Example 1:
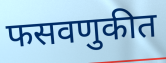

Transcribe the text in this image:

फसवणुकीत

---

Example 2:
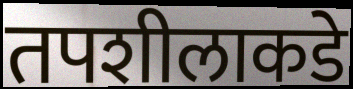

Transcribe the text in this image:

तपशीलाकडे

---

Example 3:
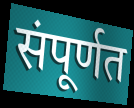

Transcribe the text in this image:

संपूर्णत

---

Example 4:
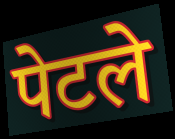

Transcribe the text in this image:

पेटले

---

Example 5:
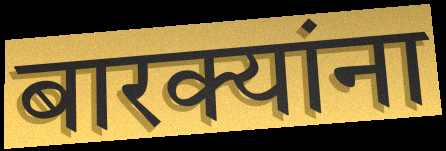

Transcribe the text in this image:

बारक्यांना